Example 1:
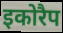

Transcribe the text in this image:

इकोरैप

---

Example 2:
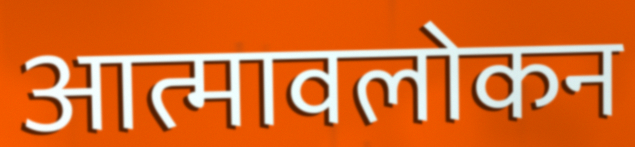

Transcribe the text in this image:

आत्‍मावलोकन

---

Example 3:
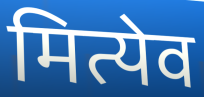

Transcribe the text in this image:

मित्येव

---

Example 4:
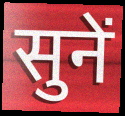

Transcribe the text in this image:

सुनें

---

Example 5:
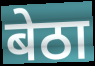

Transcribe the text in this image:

बेठा